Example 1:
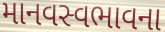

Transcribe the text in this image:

માનવસ્વભાવના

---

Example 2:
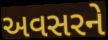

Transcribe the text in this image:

અવસરને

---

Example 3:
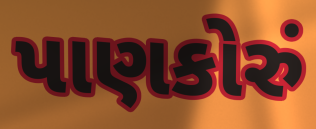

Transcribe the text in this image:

પાણકોરું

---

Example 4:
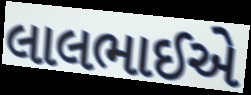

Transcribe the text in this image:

લાલભાઈએ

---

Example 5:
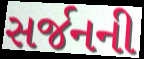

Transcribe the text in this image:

સર્જનની